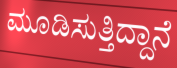
ಮೂಡಿಸುತ್ತಿದ್ದಾನೆ